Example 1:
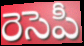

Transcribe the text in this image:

రెసెపీ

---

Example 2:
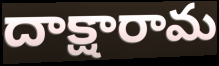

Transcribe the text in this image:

దాక్షారామ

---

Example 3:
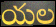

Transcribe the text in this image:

యల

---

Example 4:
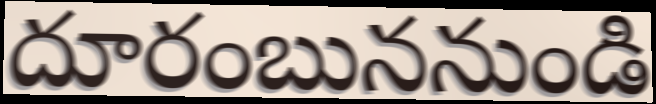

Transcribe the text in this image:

దూరంబుననుండి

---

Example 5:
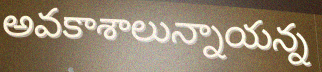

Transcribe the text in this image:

అవకాశాలున్నాయన్న